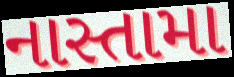
નાસ્તામા